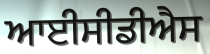
ਆਈਸੀਡੀਐਸ